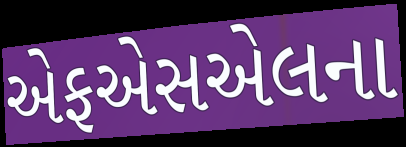
એફએસએલના